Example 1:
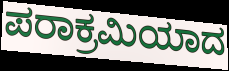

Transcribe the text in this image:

ಪರಾಕ್ರಮಿಯಾದ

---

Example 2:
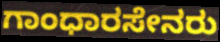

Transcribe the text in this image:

ಗಾಂಧಾರಸೇನರು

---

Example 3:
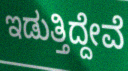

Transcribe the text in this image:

ಇಡುತ್ತಿದ್ದೇವೆ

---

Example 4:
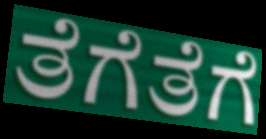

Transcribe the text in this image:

ತೆಗೆತೆಗೆ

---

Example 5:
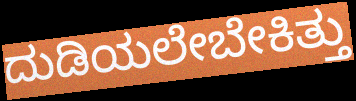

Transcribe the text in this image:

ದುಡಿಯಲೇಬೇಕಿತ್ತು